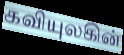
கவியுலகின்